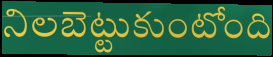
నిలబెట్టుకుంటోంది